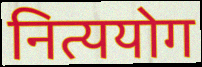
नित्ययोग